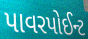
પાવરપોઈન્ટ